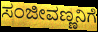
ಸಂಜೀವಣ್ಣನಿಗೆ